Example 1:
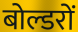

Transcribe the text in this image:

बोल्डरों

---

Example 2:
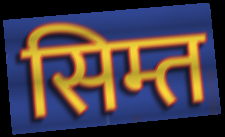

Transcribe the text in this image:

सिम्त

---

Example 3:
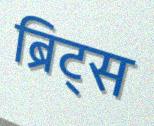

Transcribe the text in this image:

ब्रिट्स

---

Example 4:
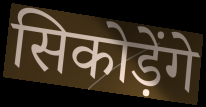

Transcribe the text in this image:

सिकोड़ेंगे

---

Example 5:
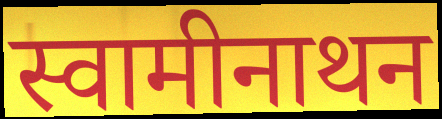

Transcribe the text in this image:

स्वामीनाथन